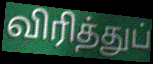
விரித்துப்